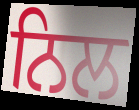
ਨਿਲ